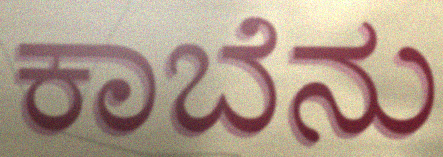
ಕಾಬೆನು